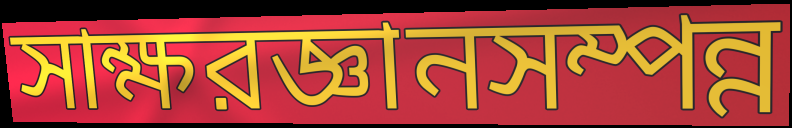
সাক্ষরজ্ঞানসম্পন্ন